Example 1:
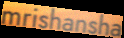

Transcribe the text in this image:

mrishansha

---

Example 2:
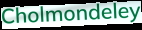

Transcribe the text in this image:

Cholmondeley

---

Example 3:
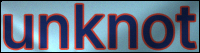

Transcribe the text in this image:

unknot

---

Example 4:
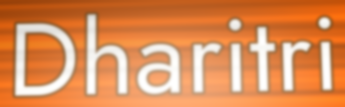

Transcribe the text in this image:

Dharitri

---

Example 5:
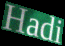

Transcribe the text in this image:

Hadi